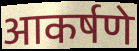
आकर्षणे